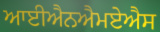
ਆਈਐਨਐਮਏਐਸ